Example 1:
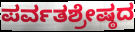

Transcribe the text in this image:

ಪರ್ವತಶ್ರೇಷ್ಠದ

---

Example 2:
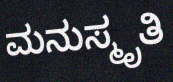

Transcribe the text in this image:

ಮನುಸ್ಮೃತಿ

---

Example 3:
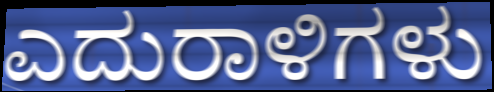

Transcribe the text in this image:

ಎದುರಾಳಿಗಳು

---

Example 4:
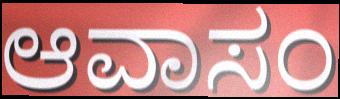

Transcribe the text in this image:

ಆವಾಸಂ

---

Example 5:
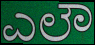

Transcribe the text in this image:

ಎಲೌ